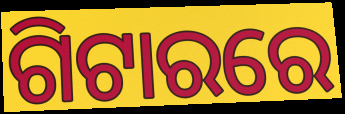
ଗିଟାରରେ